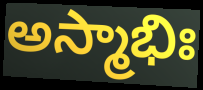
అస్మాభిః